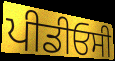
ਪੀਡੀਓਸੀ